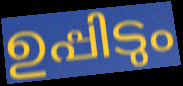
ഉപ്പിടും